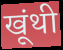
खूंथी